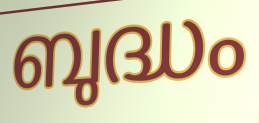
ബുദ്ധം